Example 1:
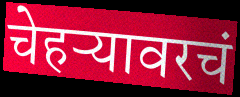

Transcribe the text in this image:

चेहऱ्यावरचं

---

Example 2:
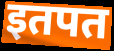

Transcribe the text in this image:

इतपत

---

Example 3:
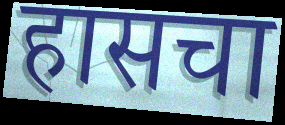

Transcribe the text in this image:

हासचा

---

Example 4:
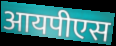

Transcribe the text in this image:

आयपीएस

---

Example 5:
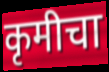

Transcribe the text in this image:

कृमीचा